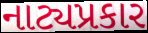
નાટ્યપ્રકાર